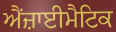
ਐਂਜ਼ਾਈਮੈਟਿਕ